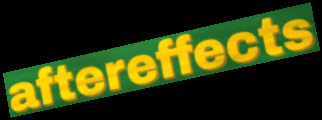
aftereffects